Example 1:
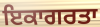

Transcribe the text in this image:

ਇਕਾਗਰਤਾ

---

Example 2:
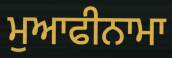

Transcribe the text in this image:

ਮੁਆਫੀਨਾਮਾ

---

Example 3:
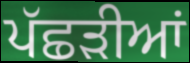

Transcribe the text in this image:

ਪੱਛੜੀਆਂ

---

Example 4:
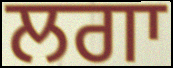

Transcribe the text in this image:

ਲਗਾ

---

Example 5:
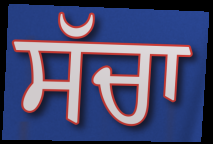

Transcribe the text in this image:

ਸੱਚਾ